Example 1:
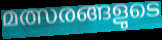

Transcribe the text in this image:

മത്സരങ്ങളുടെ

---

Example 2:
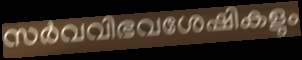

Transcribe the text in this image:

സർവവിഭവശേഷികളും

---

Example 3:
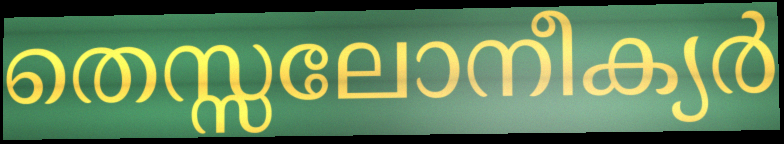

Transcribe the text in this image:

തെസ്സലോനീക്യർ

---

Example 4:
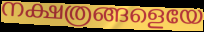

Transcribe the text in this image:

നക്ഷത്രങ്ങളെയേ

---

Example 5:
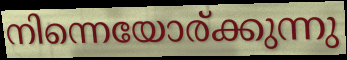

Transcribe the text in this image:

നിന്നെയോര്ക്കുന്നു